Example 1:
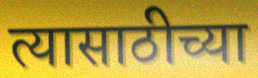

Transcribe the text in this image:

त्यासाठीच्या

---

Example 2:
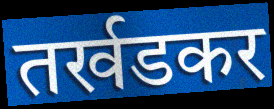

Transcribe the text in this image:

तर्खडकर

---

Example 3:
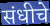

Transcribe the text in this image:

संधीचे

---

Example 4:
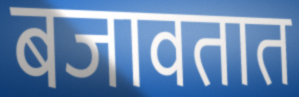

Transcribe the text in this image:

बजावतात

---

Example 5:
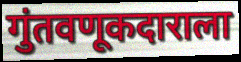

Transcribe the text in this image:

गुंतवणूकदाराला